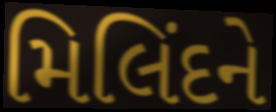
મિલિંદને